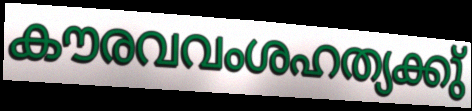
കൗരവവംശഹത്യക്കു്